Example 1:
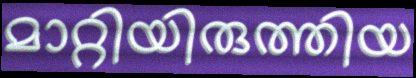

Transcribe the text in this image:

മാറ്റിയിരുത്തിയ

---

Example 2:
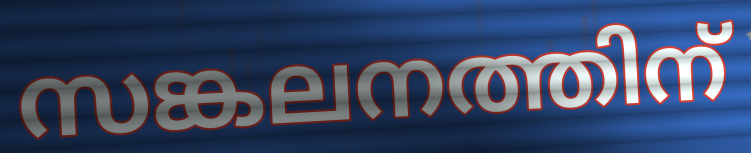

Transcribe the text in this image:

സങ്കലനത്തിന്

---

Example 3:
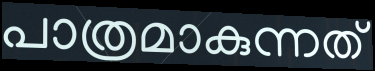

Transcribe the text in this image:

പാത്രമാകുന്നത്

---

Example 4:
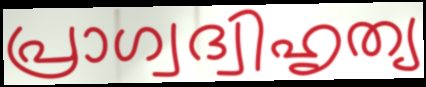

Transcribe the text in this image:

പ്രാഗ്വദ്വിഹൃത്യ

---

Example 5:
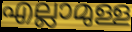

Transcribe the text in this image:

എല്ലാമുള്ള